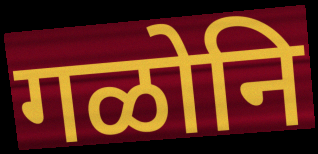
गळोनि